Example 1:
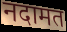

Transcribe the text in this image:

नदामत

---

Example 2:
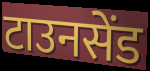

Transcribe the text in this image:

टाउनसेंड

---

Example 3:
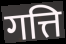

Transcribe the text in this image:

गत्ति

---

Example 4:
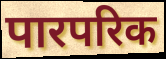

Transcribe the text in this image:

पारपरिक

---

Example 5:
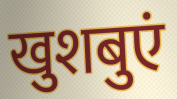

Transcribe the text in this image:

खुशबुएं